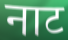
नाट